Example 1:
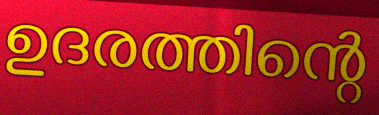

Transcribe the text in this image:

ഉദരത്തിന്റെ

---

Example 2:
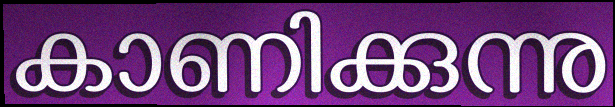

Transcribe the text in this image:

കാണിക്കുന്നു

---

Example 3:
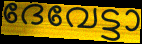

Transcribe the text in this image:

ദേവേട്ടാ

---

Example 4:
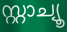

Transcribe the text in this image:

സ്റ്റാച്യൂ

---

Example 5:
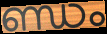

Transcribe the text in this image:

ണ്ഡം